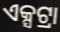
ଏକ୍ସଟ୍ରା